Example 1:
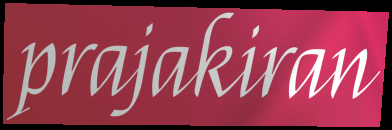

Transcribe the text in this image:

prajakiran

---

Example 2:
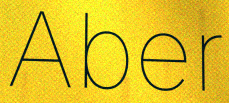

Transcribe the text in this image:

Aber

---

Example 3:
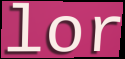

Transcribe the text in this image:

lor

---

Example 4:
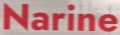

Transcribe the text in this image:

Narine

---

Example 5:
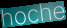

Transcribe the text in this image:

hoche